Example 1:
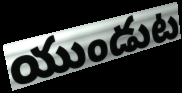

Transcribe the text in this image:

యుండుట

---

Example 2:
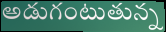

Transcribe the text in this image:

అడుగంటుతున్న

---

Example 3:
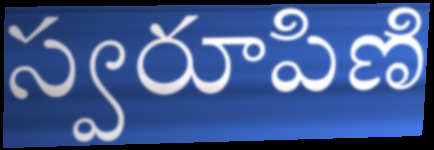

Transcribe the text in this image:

స్వరూపిణి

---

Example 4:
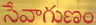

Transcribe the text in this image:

సేవాగుణం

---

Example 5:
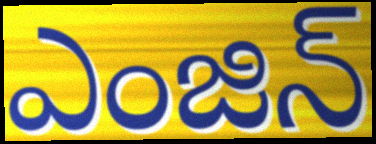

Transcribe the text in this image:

ఎంజిన్